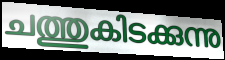
ചത്തുകിടക്കുന്നു